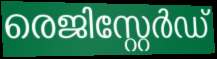
രെജിസ്റ്റേർഡ്